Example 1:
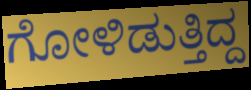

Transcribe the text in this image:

ಗೋಳಿಡುತ್ತಿದ್ದ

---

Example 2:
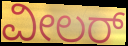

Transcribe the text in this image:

ವೀಲರ್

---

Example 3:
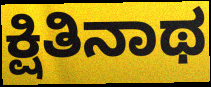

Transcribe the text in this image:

ಕ್ಷಿತಿನಾಥ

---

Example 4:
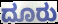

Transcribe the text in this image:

ದೂರು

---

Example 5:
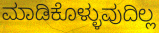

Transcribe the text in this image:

ಮಾಡಿಕೊಳ್ಳುವುದಿಲ್ಲ